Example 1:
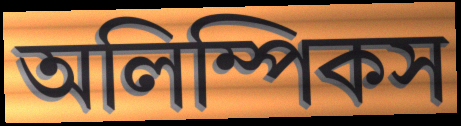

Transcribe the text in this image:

অলিম্পিকস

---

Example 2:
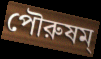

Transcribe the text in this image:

পৌরুষম্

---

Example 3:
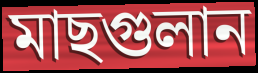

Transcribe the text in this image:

মাছগুলান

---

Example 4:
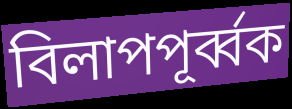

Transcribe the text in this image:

বিলাপপূর্ব্বক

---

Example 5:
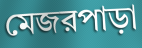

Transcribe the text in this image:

মেজরপাড়া